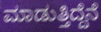
ಮಾಡುತ್ತಿದ್ದೆನೆ